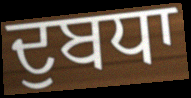
ਦੁਬਧਾ